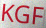
KGF